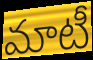
మాటీ